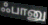
ஃபானு